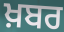
ਖ਼ਬਰ